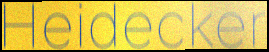
Heidecker